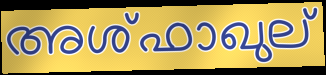
അശ്ഫാഖുല്